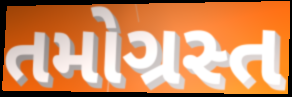
તમોગ્રસ્ત